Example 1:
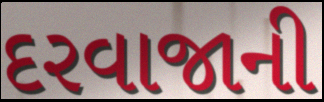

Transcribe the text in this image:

દરવાજાની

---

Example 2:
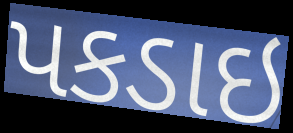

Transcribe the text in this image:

પકડાઇ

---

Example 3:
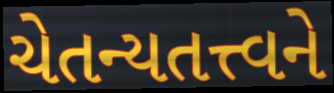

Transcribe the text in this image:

ચેતન્યતત્ત્વને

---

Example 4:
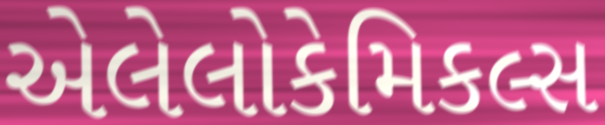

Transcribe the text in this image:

એલેલોકેમિકલ્સ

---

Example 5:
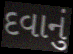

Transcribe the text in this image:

દવાનું